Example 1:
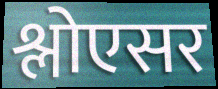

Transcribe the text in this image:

श्लोएसर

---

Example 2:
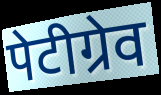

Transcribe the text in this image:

पेटीग्रेव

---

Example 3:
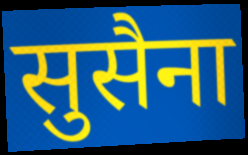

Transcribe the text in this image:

सुसैना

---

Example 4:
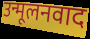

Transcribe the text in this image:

उन्मूलनवाद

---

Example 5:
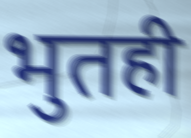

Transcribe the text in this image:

भुतही